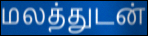
மலத்துடன்